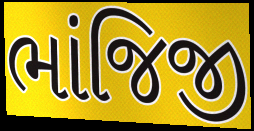
ભાંજિજી